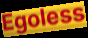
Egoless